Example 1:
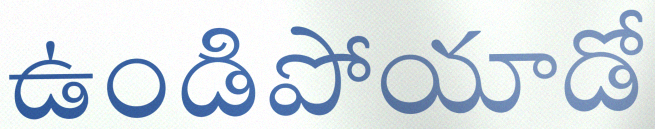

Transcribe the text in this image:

ఉండిపోయాడో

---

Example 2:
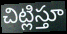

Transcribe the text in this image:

చిట్లిస్తూ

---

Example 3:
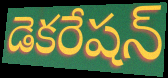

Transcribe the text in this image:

డెకరేషన్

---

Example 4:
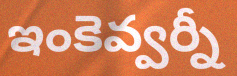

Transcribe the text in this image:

ఇంకెవ్వర్నీ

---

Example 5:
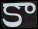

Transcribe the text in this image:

కా